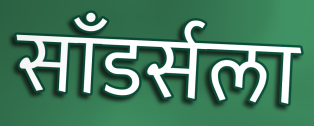
साँडर्सला